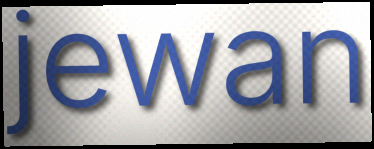
jewan